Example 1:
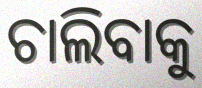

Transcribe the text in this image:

ଚାଲିବାକୁ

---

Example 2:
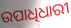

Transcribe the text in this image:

ଉପାଧିଧାରୀ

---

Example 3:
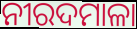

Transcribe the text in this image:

ନୀରଦମାଳା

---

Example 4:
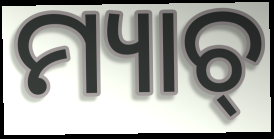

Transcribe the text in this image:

ମ୍ୟାଚ୍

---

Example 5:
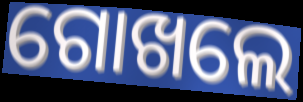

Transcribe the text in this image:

ଗୋଖଲେ